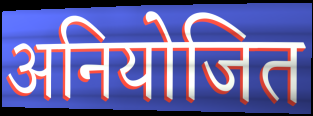
अनियोजित